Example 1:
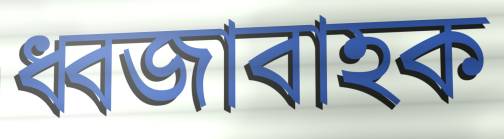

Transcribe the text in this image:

ধ্বজাবাহক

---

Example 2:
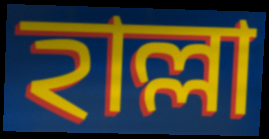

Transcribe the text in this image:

হাল্লা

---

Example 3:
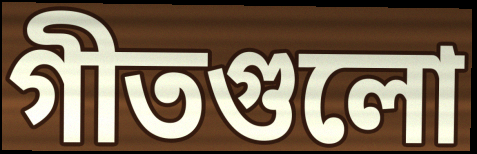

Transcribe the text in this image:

গীতগুলো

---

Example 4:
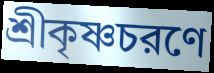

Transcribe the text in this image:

শ্রীকৃষ্ণচরণে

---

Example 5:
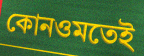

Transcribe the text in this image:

কোনওমতেই